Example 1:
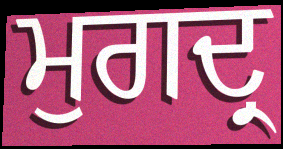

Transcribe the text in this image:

ਮੁਗਦ੍ਰ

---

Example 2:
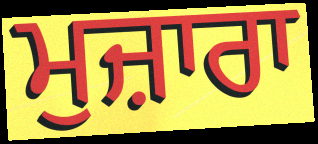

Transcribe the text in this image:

ਮੁਜ਼ਾਰਾ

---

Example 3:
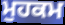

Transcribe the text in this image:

ਮੁਹਕਮ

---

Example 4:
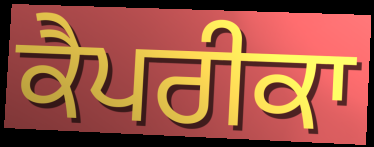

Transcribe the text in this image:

ਕੈਪਰੀਕਾ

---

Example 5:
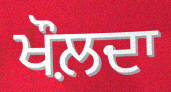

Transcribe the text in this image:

ਖੌਲ਼ਦਾ